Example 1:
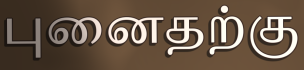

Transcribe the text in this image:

புனைதற்கு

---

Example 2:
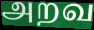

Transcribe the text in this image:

அறவ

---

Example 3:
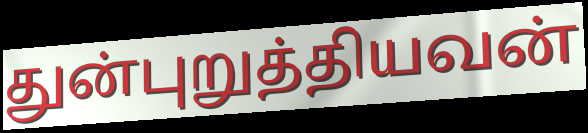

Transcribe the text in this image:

துன்புறுத்தியவன்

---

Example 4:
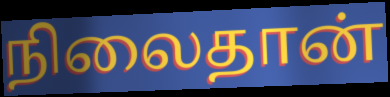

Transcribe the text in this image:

நிலைதான்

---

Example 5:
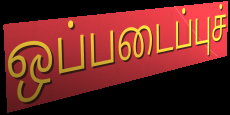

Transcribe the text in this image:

ஒப்படைப்புச்